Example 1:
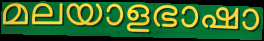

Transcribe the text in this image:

മലയാളഭാഷാ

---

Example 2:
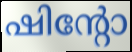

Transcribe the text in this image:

ഷിന്റോ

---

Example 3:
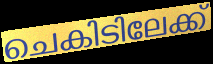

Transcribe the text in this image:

ചെകിടിലേക്ക്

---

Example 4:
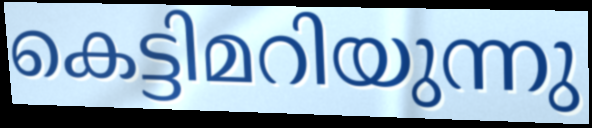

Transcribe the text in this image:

കെട്ടിമറിയുന്നു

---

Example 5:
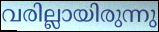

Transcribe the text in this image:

വരില്ലായിരുന്നു